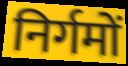
निर्गमों